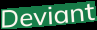
Deviant